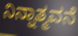
ನಿನ್ನಾತ್ಮವನೆ